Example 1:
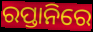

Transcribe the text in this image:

ରପ୍ତାନିରେ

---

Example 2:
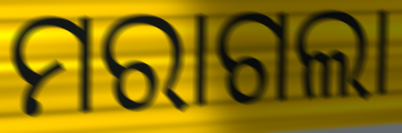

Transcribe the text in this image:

ମରାଗଲା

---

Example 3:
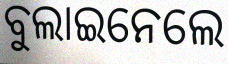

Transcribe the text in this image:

ବୁଲାଇନେଲେ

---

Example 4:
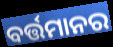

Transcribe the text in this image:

ବର୍ତ୍ତମାନର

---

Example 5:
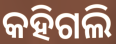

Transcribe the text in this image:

କହିଗଲି